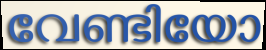
വേണ്ടിയോ